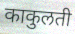
काकुलती